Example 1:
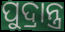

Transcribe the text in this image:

ପୁଦ୍ରାନ୍ତ୍ର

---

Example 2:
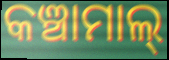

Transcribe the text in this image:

କଞ୍ଚାମାଲ୍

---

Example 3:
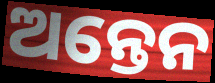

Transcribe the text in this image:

ଅନ୍ତେନ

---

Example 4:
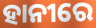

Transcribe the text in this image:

ହାନୀରେ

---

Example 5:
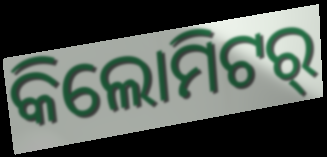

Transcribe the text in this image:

କିଲୋମିଟର୍